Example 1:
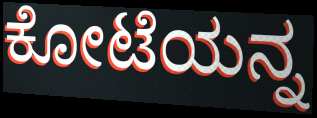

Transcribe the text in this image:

ಕೋಟೆಯನ್ನ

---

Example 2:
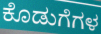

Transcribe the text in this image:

ಕೊಡುಗೆಗಳ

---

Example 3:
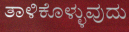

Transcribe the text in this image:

ತಾಳಿಕೊಳ್ಳುವುದು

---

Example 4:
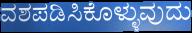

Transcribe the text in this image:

ವಶಪಡಿಸಿಕೊಳ್ಳುವುದು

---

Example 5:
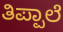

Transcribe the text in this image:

ತಿಪ್ಪಾಲೆ